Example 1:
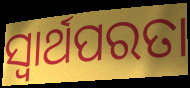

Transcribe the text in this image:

ସ୍ବାର୍ଥପରତା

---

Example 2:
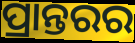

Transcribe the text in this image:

ପ୍ରାନ୍ତରର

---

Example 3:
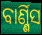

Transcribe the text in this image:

ବାର୍ଣ୍ଣିସ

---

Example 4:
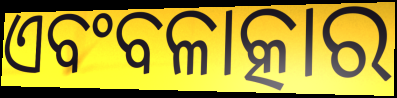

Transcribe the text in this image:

ଏବଂବଳାତ୍କାର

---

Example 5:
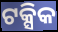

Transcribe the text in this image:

ଟକ୍ସିକ